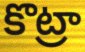
కొట్రా